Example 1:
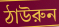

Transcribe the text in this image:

ঠাউরুন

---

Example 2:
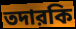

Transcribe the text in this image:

তদারকি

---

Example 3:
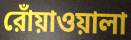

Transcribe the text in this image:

রোঁয়াওয়ালা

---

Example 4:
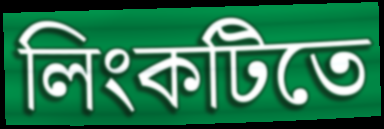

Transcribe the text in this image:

লিংকটিতে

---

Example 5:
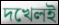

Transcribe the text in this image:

দখেলই